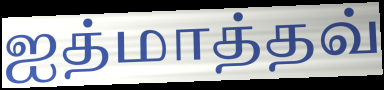
ஐத்மாத்தவ்